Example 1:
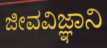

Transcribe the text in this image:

ಜೀವವಿಜ್ಞಾನಿ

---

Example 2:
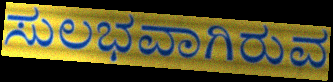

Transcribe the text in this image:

ಸುಲಭವಾಗಿರುವ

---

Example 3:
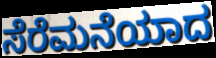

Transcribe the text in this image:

ಸೆರೆಮನೆಯಾದ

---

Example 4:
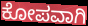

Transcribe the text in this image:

ಕೋಪವಾಗಿ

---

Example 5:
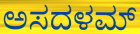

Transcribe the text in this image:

ಅಸದಳಮ್